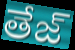
తేజ్